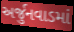
અર્જુનવાડમાં